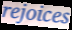
rejoices